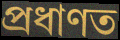
প্রধাণত